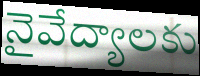
నైవేద్యాలకు